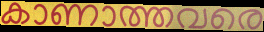
കാണാത്തവരെ